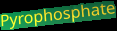
Pyrophosphate